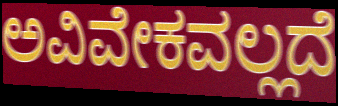
ಅವಿವೇಕವಲ್ಲದೆ